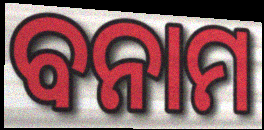
ବନାମ